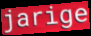
jarige